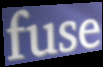
fuse